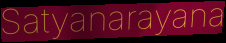
Satyanarayana